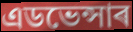
এডভেন্সাৰ